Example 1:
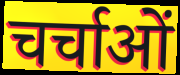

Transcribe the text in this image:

चर्चाओं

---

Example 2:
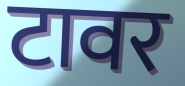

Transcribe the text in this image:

टावर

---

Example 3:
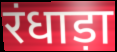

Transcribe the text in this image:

रंधाड़ा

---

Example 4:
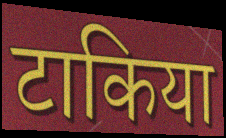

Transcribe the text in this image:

टाकिया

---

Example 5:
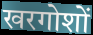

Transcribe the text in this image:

खरगोशों